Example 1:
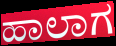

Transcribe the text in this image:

ಹಾಲಾಗ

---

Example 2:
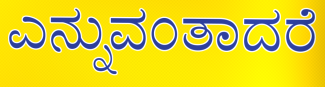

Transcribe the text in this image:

ಎನ್ನುವಂತಾದರೆ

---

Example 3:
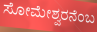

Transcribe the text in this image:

ಸೋಮೇಶ್ವರನೆಂಬ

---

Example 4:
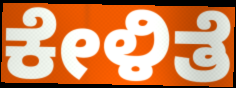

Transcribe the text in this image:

ಕೇಳಿತೆ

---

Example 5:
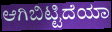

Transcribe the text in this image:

ಆಗಿಬಿಟ್ಟಿದೆಯಾ